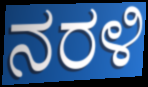
ನರಳಿ